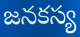
జనకస్య